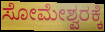
ಸೋಮೇಶ್ವರಕ್ಕೆ